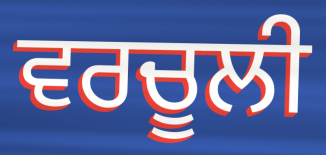
ਵਰਚੂਲੀ